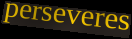
perseveres